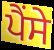
ਪੈਂਸੇ